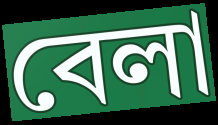
বেলা